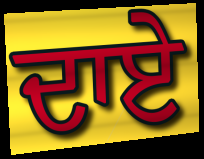
ਦਾਏ